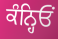
ਕੰਨ੍ਹਿਓਂ